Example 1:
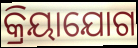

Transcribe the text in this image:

କ୍ରିୟାଯୋଗ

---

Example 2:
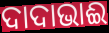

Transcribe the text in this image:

ଦାଦାଭାଈ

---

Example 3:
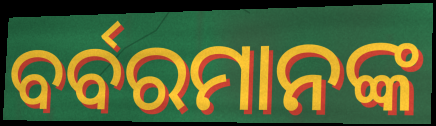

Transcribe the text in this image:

ବର୍ବରମାନଙ୍କ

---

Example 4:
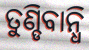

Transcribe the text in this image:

ତୁଣ୍ଡିବାନ୍ଧି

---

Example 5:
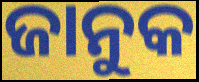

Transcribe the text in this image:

ଜାନୁକ